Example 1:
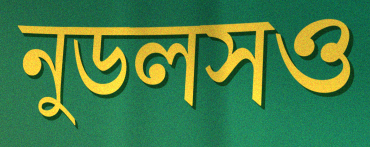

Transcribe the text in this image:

নুডলসও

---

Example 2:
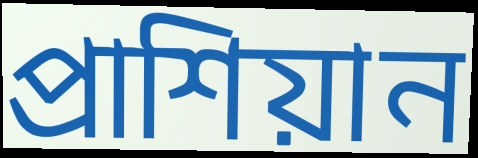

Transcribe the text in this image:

প্রাশিয়ান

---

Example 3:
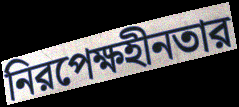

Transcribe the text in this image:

নিরপেক্ষহীনতার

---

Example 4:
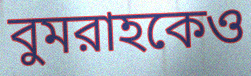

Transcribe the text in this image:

বুমরাহকেও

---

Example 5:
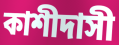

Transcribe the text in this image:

কাশীদাসী